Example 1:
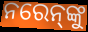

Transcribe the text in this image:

ନରେନ୍‍ଙ୍କୁ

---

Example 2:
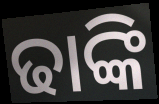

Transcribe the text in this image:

ଢାଙ୍କି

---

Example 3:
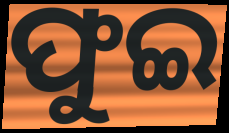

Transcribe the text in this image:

ଫୁଇ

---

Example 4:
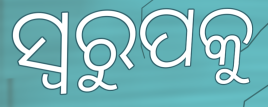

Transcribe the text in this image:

ସ୍ଵରୁପକୁ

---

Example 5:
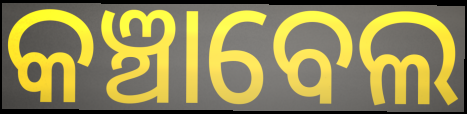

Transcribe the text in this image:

କଞ୍ଚାବେଲ